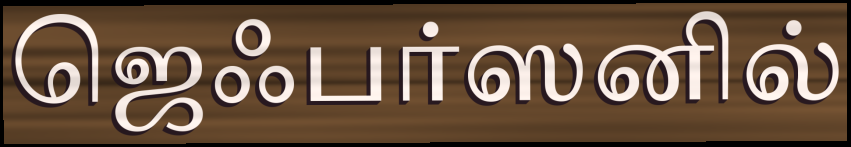
ஜெஃபர்ஸனில்